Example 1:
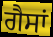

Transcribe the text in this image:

ਗੈਸਾਂ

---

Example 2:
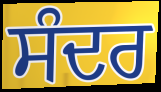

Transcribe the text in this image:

ਸੰਦਰ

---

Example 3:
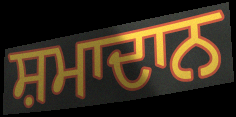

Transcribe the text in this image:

ਸ਼ਮਾਦਾਨ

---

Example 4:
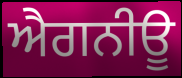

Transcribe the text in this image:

ਐਗਨੀਊ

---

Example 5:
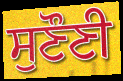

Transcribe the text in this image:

ਸੁਣੌਣੀ